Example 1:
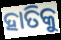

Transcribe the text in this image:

ହାତିକୁ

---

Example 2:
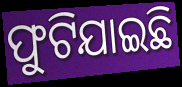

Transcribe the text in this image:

ଫୁଟିଯାଇଛି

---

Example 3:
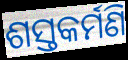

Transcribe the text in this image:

ଶସ୍ତକର୍ମଣି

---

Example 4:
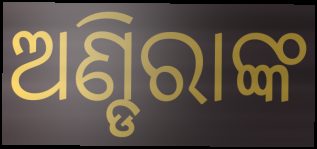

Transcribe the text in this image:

ଅଣ୍ଡିରାଙ୍କ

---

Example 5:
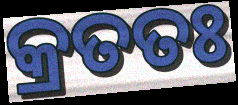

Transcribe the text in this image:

କ୍ରତତଃ